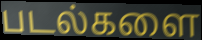
படல்களை